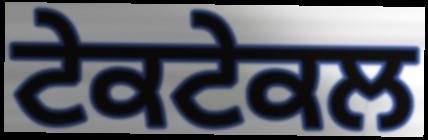
ਟੇਕਟੇਕਲ